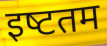
इष्‍टतम